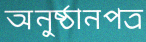
অনুষ্ঠানপত্র